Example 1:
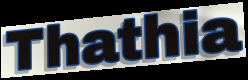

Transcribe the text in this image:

Thathia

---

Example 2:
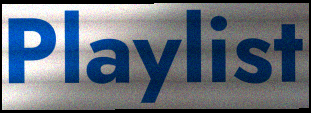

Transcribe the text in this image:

Playlist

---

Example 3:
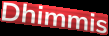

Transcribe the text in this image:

Dhimmis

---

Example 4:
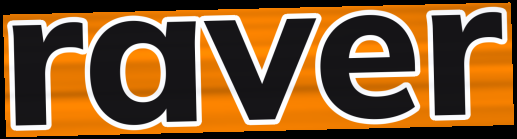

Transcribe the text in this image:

raver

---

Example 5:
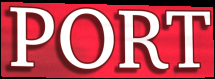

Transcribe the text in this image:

PORT